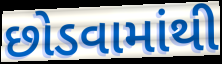
છોડવામાંથી